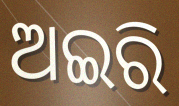
ଅଇରି